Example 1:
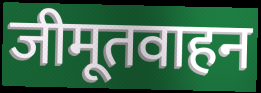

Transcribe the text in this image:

जीमूतवाहन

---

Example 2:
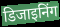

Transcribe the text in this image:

डिजाइनिंग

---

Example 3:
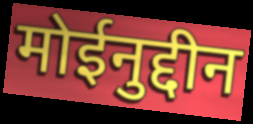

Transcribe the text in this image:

मोईनुद्दीन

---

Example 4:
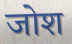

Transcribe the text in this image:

जोश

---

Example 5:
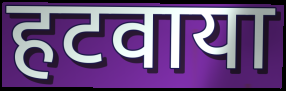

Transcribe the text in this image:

हटवाया